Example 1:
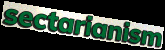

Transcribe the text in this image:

sectarianism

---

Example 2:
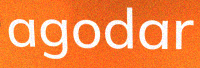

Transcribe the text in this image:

agodar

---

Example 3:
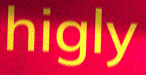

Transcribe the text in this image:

higly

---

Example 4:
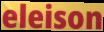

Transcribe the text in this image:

eleison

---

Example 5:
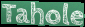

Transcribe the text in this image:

Tahole